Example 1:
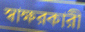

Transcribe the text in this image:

স্বাক্ষরকারী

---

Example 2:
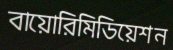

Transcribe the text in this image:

বায়োরিমিডিয়েশন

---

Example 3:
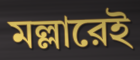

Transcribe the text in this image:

মল্লারেই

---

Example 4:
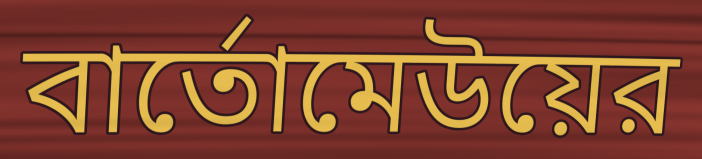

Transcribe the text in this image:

বার্তোমেউয়ের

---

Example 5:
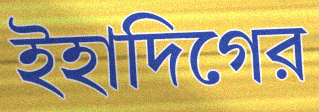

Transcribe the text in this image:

ইহাদিগের